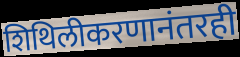
शिथिलीकरणानंतरही